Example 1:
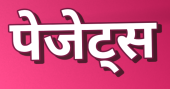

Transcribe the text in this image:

पेजेट्स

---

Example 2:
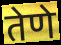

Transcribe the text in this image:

तेणे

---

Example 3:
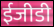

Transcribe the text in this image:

ईजीडी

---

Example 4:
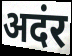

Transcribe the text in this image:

अदंर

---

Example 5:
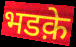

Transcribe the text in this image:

भडक़े